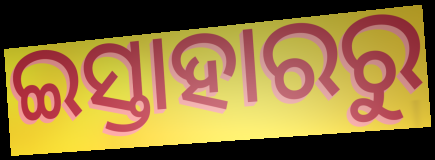
ଇସ୍ତାହାରରୁ